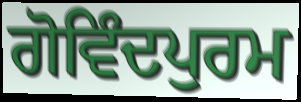
ਗੋਵਿੰਦਪੁਰਮ